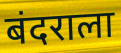
बंदराला